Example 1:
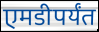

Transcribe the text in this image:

एमडीपर्यंत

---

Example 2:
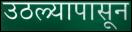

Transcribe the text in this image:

उठल्यापासून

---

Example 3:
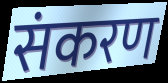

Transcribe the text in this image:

संकरण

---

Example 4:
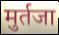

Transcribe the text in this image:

मुर्तजा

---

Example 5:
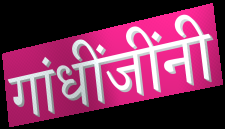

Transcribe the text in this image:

गांधींजींनी